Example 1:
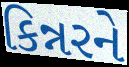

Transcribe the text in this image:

કિન્નરને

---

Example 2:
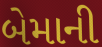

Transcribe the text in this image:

બેમાની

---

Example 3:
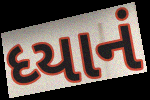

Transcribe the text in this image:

ધ્યાનં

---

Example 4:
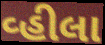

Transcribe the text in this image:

વ્હીલા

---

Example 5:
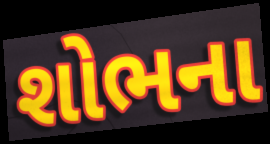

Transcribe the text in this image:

શોભના